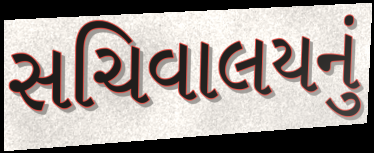
સચિવાલયનું